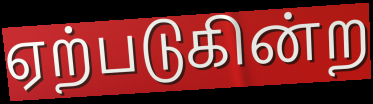
ஏற்படுகின்ற